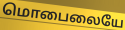
மொபைலையே